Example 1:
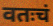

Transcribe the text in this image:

वतःचं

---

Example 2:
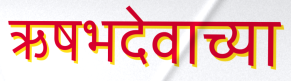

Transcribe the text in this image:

ऋषभदेवाच्या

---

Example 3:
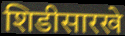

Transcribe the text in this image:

शिडीसारखे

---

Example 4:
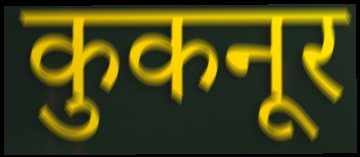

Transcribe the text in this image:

कुकनूर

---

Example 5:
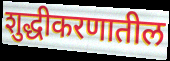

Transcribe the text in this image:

शुद्धीकरणातील